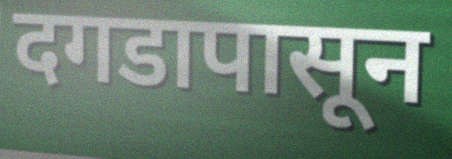
दगडापासून